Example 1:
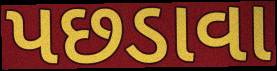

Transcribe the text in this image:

પછડાવા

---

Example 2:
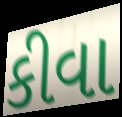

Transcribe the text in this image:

કીવા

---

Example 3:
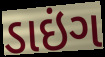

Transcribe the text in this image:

ડાઇંગ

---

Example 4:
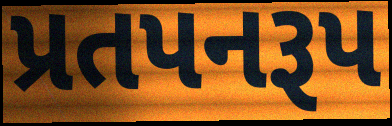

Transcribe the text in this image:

પ્રતપનરૂપ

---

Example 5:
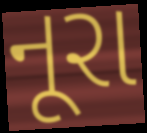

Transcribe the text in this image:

નૂરા